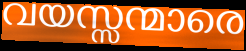
വയസ്സന്മാരെ